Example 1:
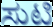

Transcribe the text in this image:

ಸುಟಿ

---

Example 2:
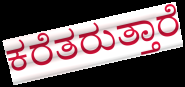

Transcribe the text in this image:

ಕರೆತರುತ್ತಾರೆ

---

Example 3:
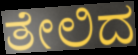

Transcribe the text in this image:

ತೇಲಿದ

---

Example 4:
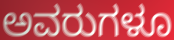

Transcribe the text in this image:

ಅವರುಗಳೂ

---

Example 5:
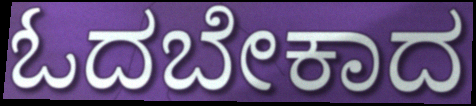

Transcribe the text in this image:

ಓದಬೇಕಾದ